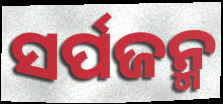
ସର୍ପଜନ୍ମ